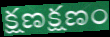
క్షణక్షణం